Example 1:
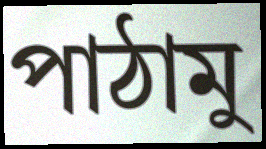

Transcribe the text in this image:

পাঠামু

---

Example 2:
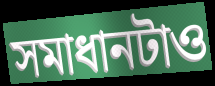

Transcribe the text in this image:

সমাধানটাও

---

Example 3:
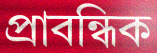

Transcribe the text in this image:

প্রাবন্ধিক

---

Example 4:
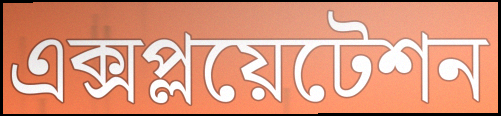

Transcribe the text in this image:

এক্সপ্লয়েটেশন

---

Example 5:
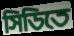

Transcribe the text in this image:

সিডিতে